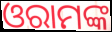
ଓରାମଙ୍କ